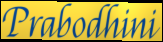
Prabodhini